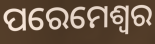
ପରେମେଶ୍ଵର